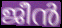
ജീൻ